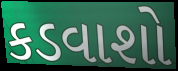
કડવાશો